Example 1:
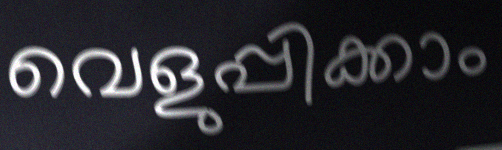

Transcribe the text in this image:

വെളുപ്പിക്കാം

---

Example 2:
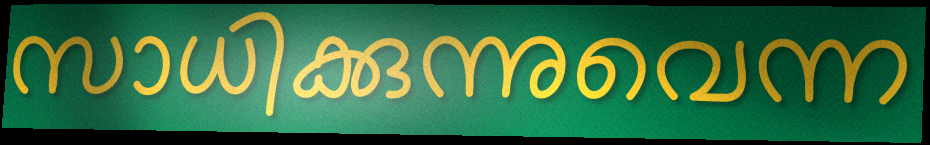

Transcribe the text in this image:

സാധിക്കുന്നുവെന്ന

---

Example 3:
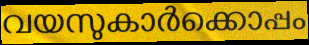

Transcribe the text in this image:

വയസുകാർക്കൊപ്പം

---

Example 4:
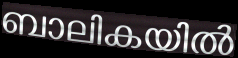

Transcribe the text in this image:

ബാലികയിൽ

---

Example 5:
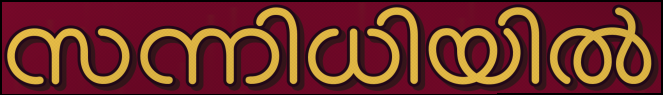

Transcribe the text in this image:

സന്നിധിയിൽ